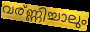
വര്ണ്ണിച്ചാലും